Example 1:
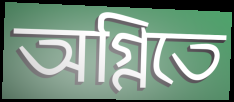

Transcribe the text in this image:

অগ্নিতে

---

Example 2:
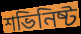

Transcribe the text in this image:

শভিনিষ্ট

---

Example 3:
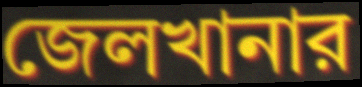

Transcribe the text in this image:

জেলখানার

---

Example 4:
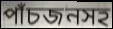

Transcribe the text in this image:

পাঁচজনসহ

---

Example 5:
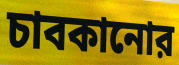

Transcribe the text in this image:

চাবকানোর